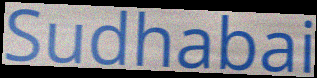
Sudhabai